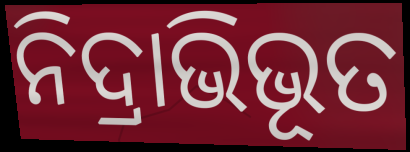
ନିଦ୍ରାଭିଭୂତ